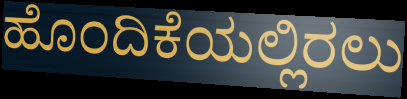
ಹೊಂದಿಕೆಯಲ್ಲಿರಲು